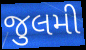
જુલમી